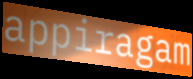
appiragam